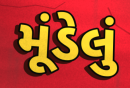
મૂંડેલું